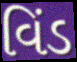
વિંડ